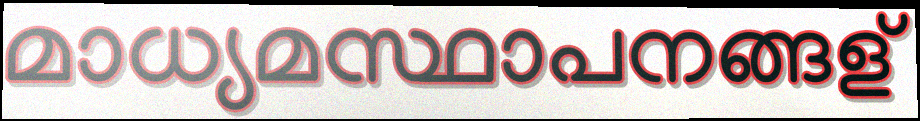
മാധ്യമസ്ഥാപനങ്ങള്